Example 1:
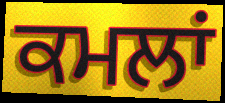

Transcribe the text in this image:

ਕਮਲਾਂ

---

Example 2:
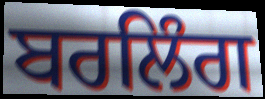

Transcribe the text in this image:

ਬਰਲਿੰਗ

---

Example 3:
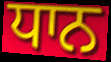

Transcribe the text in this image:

ਧਾਨ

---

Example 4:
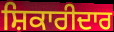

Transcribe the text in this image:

ਸ਼ਿਕਾਰੀਦਾਰ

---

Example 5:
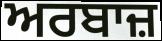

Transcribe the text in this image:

ਅਰਬਾਜ਼